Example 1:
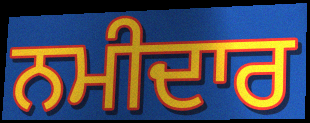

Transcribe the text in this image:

ਨਮੀਦਾਰ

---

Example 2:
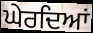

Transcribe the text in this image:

ਘੇਰਦਿਆਂ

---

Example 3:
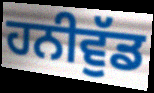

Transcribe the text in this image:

ਹਨੀਵੁੱਡ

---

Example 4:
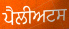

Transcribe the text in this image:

ਪੈਲੀਅਟਸ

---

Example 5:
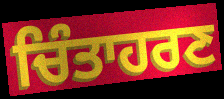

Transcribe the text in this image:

ਚਿੰਤਾਹਰਣ